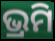
ଭ୍ରମି